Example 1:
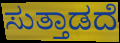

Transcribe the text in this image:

ಸುತ್ತಾಡದೆ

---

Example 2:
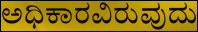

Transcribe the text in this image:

ಅಧಿಕಾರವಿರುವುದು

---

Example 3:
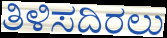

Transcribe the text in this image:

ತಿಳಿಸದಿರಲು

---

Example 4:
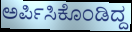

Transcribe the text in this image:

ಅರ್ಪಿಸಿಕೊಂಡಿದ್ದ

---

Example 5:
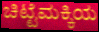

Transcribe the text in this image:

ಚಿಟ್ಟೆಮಕ್ಕಿಯ